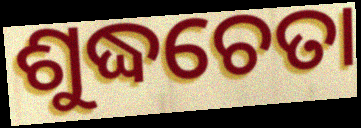
ଶୁଦ୍ଧଚେତା